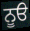
ਨੂੳ